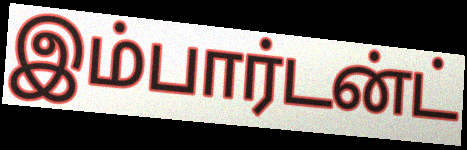
இம்பார்டன்ட்